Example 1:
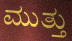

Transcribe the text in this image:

ಮುತ್ತು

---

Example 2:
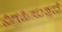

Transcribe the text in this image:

ನಿಗ್ರಹಿಸುತ್ತದೆ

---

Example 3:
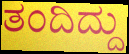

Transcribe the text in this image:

ತಂದಿದ್ದು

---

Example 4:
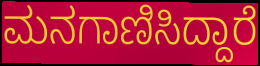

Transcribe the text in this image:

ಮನಗಾಣಿಸಿದ್ದಾರೆ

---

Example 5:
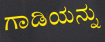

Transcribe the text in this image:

ಗಾಡಿಯನ್ನು